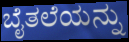
ಬೈತಲೆಯನ್ನು